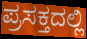
ಪ್ರಸಕ್ತದಲ್ಲಿ